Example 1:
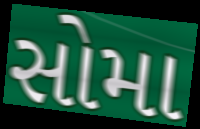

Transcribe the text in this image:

સોમા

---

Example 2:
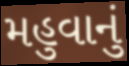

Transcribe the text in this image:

મહુવાનું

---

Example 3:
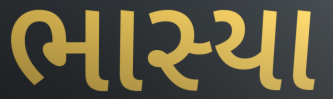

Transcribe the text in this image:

ભાસ્યા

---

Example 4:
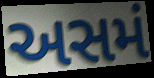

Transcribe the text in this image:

અસમં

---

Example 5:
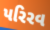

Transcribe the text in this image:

પરિરવ